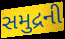
સમુદ્રની